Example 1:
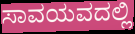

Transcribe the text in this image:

ಸಾವಯವದಲ್ಲಿ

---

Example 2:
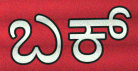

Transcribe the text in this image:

ಬಕ್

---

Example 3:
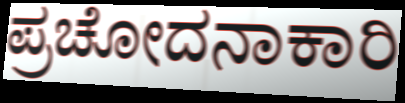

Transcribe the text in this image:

ಪ್ರಚೋದನಾಕಾರಿ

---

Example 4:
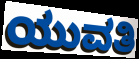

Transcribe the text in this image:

ಯುವತಿ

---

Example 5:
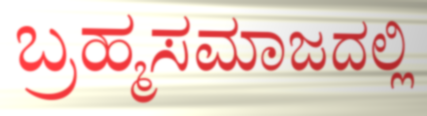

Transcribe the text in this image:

ಬ್ರಹ್ಮಸಮಾಜದಲ್ಲಿ